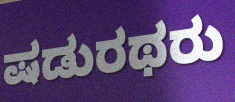
ಷಡುರಥರು